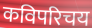
कविपरिचय